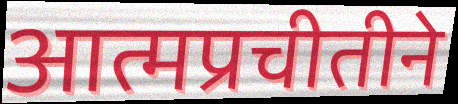
आत्मप्रचीतीने